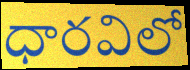
ధారవిలో